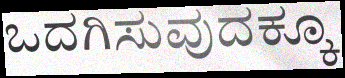
ಒದಗಿಸುವುದಕ್ಕೂ